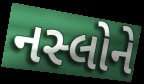
નસ્લોને